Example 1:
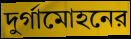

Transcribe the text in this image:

দুর্গামোহনের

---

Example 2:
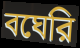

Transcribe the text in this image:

বঘেরি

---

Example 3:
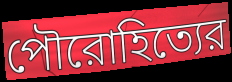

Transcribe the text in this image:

পৌরোহিত্যের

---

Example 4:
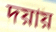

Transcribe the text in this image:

দয়ায়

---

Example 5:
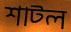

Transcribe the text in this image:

শাট্ল